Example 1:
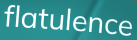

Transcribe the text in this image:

flatulence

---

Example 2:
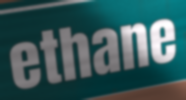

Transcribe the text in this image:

ethane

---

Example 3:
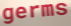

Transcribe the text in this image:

germs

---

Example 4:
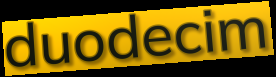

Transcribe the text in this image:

duodecim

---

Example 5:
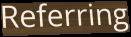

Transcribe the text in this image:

Referring